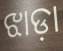
ଝାଡ଼ା